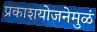
प्रकाशयोजनेमुळं